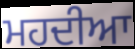
ਮਹਦੀਆ